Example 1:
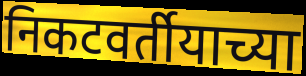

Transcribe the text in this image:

निकटवर्तीयाच्या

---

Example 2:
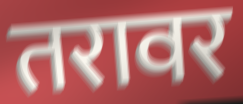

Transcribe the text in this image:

तरावर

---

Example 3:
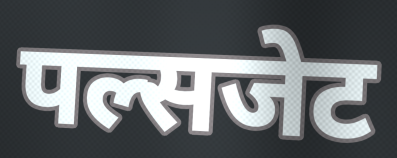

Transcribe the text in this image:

पल्सजेट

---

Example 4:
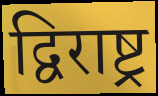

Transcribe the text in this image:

द्विराष्ट्र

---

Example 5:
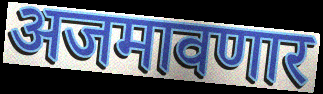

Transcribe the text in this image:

अजमावणार